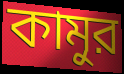
কামুর